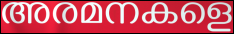
അരമനകളെ